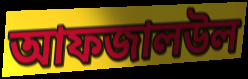
আফজালউল